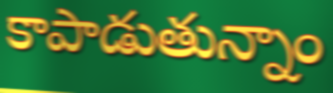
కాపాడుతున్నాం